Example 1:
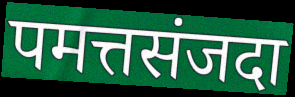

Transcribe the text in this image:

पमत्तसंजदा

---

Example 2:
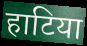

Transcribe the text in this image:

हाटिया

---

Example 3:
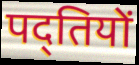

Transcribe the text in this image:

पद्तियों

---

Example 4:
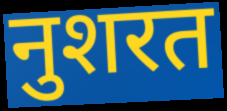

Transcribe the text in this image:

नुशरत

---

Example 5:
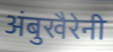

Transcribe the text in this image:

अंबुखैरेनी